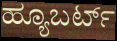
ಹ್ಯೂಬರ್ಟ್